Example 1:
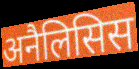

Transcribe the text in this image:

अनैलिसिस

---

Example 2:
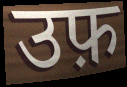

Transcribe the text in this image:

उफ़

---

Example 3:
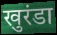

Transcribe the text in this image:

खुरंडा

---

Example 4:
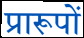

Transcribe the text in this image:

प्रारूपों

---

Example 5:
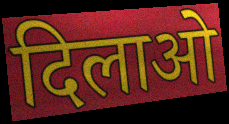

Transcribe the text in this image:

दिलाओ